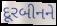
દૂરબીનને